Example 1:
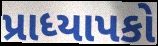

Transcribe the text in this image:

પ્રાધ્યાપકો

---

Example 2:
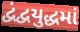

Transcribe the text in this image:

દ્વંદ્વયુદ્ધમાં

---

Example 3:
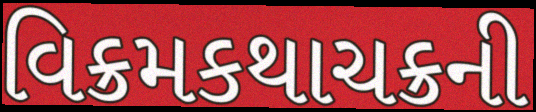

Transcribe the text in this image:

વિક્રમકથાચક્રની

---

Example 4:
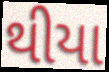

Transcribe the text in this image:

થીયા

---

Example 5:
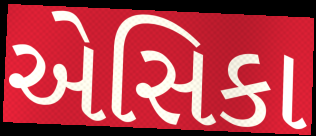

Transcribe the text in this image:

એસિકા